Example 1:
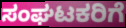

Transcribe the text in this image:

ಸಂಘಟಕರಿಗೆ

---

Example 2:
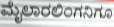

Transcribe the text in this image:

ಮೈಲಾರಲಿಂಗನಿಗೂ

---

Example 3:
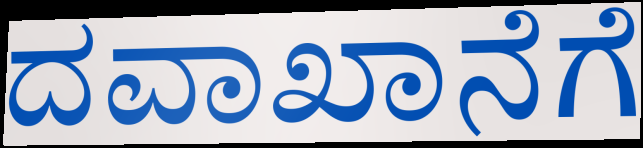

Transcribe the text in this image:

ದವಾಖಾನೆಗೆ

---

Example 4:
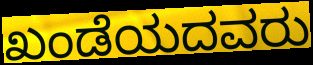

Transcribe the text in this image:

ಖಂಡೆಯದವರು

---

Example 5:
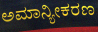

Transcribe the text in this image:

ಅಮಾನ್ಯೀಕರಣ